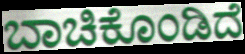
ಬಾಚಿಕೊಂಡಿದೆ